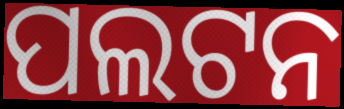
ପଲଟନ